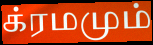
க்ரமமும்